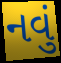
નવું